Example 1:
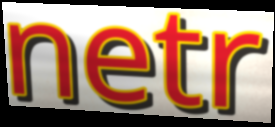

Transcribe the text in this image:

netr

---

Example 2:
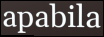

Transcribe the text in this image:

apabila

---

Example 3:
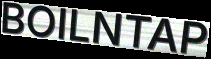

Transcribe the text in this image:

BOILNTAP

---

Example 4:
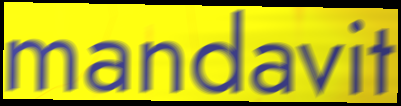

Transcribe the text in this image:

mandavit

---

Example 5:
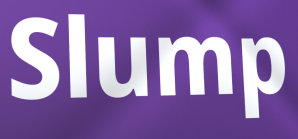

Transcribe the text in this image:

Slump